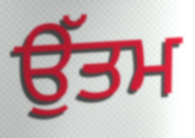
ਉੱਤਮ